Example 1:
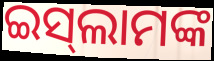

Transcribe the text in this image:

ଇସ୍‌ଲାମଙ୍କ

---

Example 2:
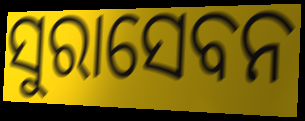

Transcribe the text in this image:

ସୁରାସେବନ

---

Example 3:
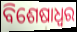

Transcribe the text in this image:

ବିଶେଷାଧ୍ଵର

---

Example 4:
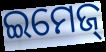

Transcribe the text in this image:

ଇମେଜ୍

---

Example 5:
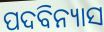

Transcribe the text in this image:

ପଦବିନ୍ୟାସ